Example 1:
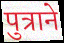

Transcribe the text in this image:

पुत्राने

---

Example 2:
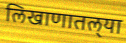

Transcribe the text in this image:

लिखाणातल्या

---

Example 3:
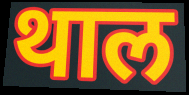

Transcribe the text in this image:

थाल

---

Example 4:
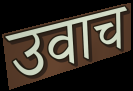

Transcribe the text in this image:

उवाच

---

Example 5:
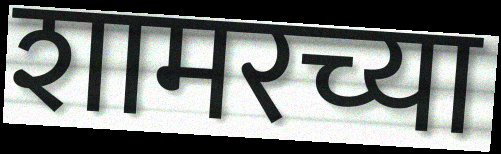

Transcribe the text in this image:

शामरच्या